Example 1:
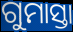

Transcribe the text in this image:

ଗୁମାସ୍ତା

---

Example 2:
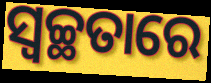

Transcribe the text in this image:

ସ୍ବଚ୍ଛତାରେ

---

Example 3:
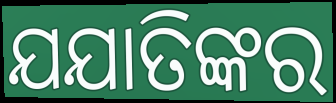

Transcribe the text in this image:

ଯଯାତିଙ୍କର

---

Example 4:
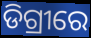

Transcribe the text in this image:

ଡିଗ୍ରୀରେ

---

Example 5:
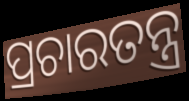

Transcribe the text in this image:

ପ୍ରଚାରତନ୍ତ୍ର